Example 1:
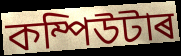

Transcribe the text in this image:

কম্পিউটাৰ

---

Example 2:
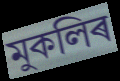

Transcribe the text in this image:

মুকলিৰ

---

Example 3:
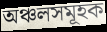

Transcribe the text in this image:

অঞ্চলসমূহক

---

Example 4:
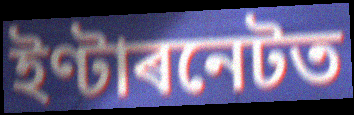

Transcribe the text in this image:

ইণ্টাৰনেটত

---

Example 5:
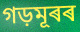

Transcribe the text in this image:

গড়মূৰৰ